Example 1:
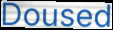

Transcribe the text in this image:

Doused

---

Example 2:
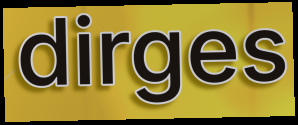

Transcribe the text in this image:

dirges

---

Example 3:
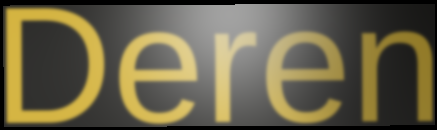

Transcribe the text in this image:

Deren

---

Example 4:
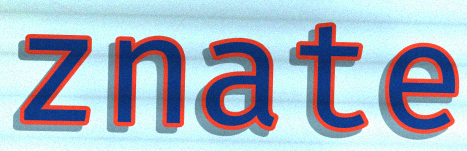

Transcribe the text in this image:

znate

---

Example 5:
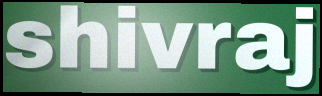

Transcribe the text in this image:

shivraj